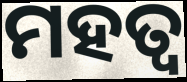
ମହତ୍ବ